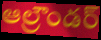
ఆల్రౌండర్